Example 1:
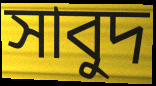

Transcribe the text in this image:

সাবুদ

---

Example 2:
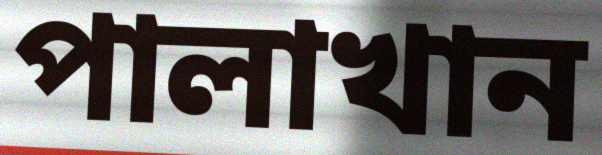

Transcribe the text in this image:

পালাখান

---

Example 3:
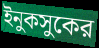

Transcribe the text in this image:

ইনুকসুকের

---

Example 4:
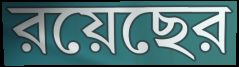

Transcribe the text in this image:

রয়েছের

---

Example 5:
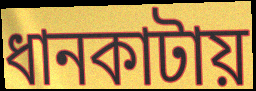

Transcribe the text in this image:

ধানকাটায়